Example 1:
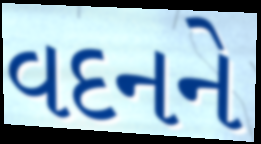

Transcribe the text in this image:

વદનને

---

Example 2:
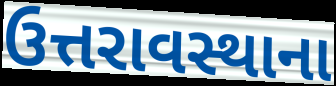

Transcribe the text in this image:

ઉત્તરાવસ્થાના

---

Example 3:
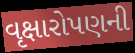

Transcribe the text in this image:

વૃક્ષારોપણની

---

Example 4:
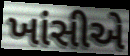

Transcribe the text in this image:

ખાંસીએ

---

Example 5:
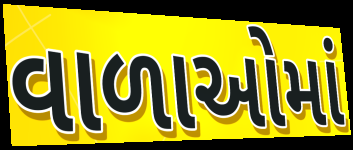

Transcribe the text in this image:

વાળાઓમાં